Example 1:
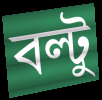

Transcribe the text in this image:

বল্টু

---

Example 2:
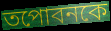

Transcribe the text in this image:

তপোবনকে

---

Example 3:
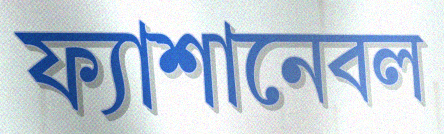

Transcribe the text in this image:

ফ্যাশানেবল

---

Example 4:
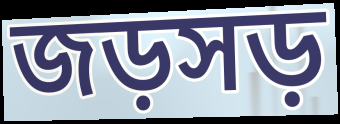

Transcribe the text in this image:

জড়সড়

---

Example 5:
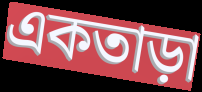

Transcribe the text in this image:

একতাড়া